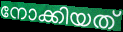
നോക്കിയത്